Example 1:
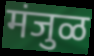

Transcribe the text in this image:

मंजुळ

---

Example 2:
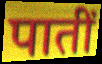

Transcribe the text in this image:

पातीं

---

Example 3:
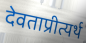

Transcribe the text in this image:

देवताप्रीत्यर्थ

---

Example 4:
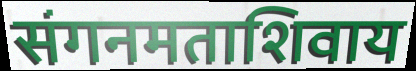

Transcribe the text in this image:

संगनमताशिवाय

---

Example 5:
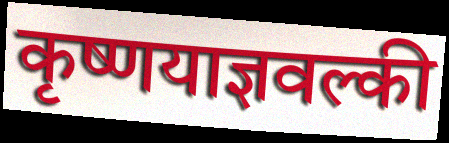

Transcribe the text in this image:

कृष्णयाज्ञवल्की